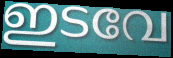
ഇടവേ